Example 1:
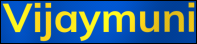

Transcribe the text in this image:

Vijaymuni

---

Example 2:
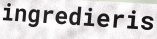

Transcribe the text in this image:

ingredieris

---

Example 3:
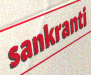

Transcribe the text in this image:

sankranti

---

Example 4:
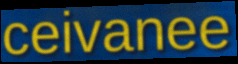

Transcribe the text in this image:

ceivanee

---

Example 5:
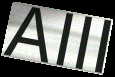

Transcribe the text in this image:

AIII